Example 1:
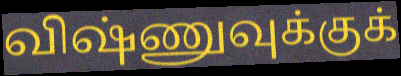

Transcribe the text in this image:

விஷ்ணுவுக்குக்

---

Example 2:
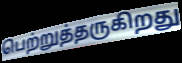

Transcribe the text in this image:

பெற்றுத்தருகிறது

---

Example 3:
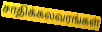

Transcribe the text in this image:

சாதிக்கலவரங்கள்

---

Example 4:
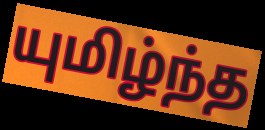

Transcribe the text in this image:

யுமிழ்ந்த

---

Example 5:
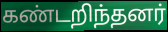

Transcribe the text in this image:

கண்டறிந்தனர்